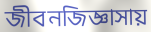
জীবনজিজ্ঞাসায়